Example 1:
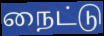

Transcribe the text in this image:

நைட்டு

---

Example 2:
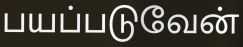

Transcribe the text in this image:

பயப்படுவேன்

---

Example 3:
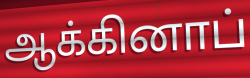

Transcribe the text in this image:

ஆக்கினாப்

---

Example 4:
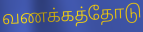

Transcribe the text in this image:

வணக்கத்தோடு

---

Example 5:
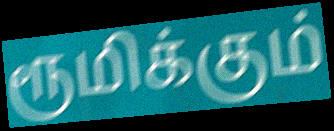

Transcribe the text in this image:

ரூமிக்கும்